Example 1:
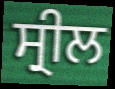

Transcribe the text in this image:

ਸ੍ਰੀਲ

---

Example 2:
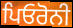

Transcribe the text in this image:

ਪਿਓਰੋਨੀ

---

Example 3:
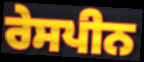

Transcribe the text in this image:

ਰੇਸਪੀਨ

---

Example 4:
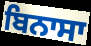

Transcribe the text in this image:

ਬਿਨਾਸਾ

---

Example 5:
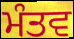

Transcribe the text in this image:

ਮੰਤਵ